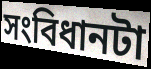
সংবিধানটা